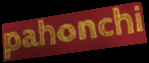
pahonchi